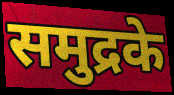
समुद्रके